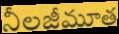
నీలజీమూత